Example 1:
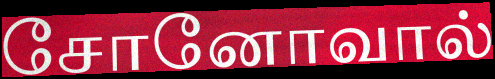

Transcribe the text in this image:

சோனோவால்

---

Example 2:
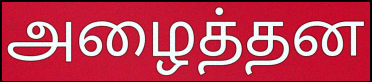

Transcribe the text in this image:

அழைத்தன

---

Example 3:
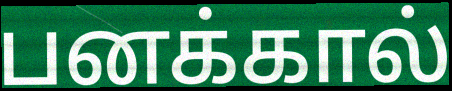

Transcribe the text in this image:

பனக்கால்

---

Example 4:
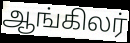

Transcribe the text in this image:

ஆங்கிலர்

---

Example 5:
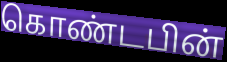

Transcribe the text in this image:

கொண்டபின்